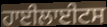
ਹਾਈਲਾਈਟਸ